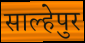
साल्हेपुर